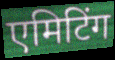
एमिटिंग